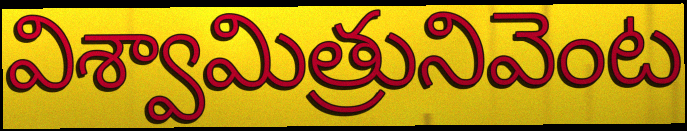
విశ్వామిత్రునివెంట